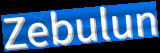
Zebulun